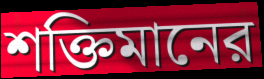
শক্তিমানের